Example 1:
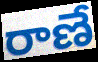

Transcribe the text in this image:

రాణే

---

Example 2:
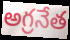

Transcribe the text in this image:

అగ్రనేత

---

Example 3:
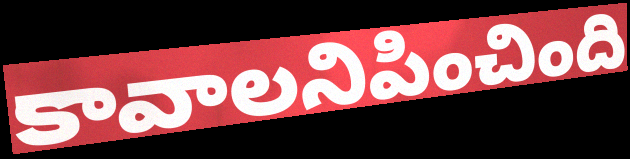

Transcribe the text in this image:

కావాలనిపించింది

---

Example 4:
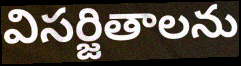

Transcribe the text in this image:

విసర్జితాలను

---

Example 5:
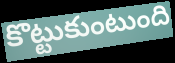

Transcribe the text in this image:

కొట్టుకుంటుంది